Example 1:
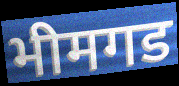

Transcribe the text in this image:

भीमगड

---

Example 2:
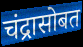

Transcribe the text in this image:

चंद्रासोबत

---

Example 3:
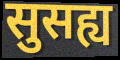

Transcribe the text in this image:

सुसह्य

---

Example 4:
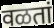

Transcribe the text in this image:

वळतां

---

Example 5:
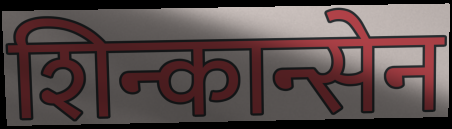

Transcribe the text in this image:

शिन्कान्सेन